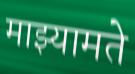
माझ्यामते